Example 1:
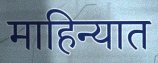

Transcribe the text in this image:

माहिन्यात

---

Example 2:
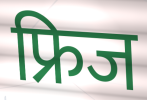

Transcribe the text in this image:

फ्रिज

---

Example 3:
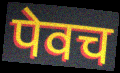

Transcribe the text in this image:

पेवच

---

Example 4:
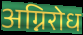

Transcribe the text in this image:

अग्निरोध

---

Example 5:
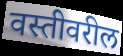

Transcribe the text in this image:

वस्तीवरील